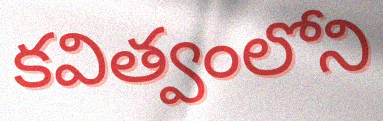
కవిత్వంలోని